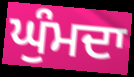
ਘੁੰਮਦਾ